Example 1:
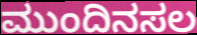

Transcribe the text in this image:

ಮುಂದಿನಸಲ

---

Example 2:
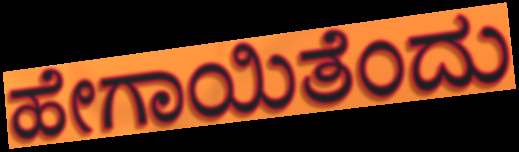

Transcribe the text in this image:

ಹೇಗಾಯಿತೆಂದು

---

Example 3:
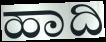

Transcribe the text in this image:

ಹಾದಿ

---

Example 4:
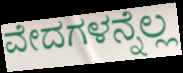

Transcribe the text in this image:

ವೇದಗಳನ್ನೆಲ್ಲ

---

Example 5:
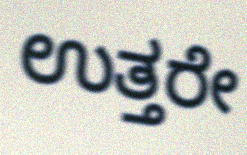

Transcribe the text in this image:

ಉತ್ತರೇ